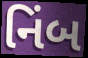
નિંબ